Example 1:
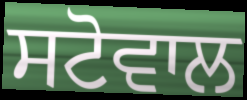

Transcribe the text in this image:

ਸਟੋਵਾਲ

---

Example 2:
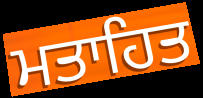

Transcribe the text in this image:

ਮਤਾਹਿਤ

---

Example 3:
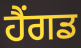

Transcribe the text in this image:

ਹੈਂਗਡ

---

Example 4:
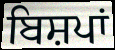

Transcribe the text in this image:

ਬਿਸ਼ਪਾਂ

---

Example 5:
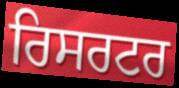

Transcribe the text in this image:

ਰਿਸਰਟਰ